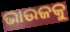
ଭାଉଜକୁ